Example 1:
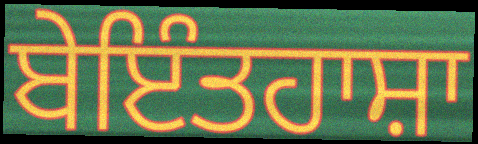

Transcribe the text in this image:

ਬੇਇੰਤਹਾਸ਼ਾ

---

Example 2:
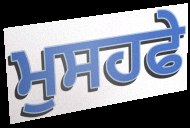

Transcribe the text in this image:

ਮੁਸਹਫੇ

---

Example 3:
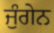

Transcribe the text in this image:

ਜੁੰਗੇਨ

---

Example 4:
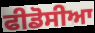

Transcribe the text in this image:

ਫੀਡੋਸੀਆ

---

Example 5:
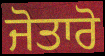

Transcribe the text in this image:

ਜੋਤਾਰੋ